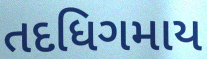
તદધિગમાય